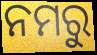
ନମରୁ